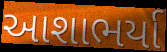
આશાભર્યા